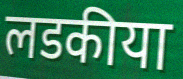
लडकीया